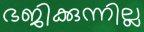
ഭജിക്കുന്നില്ല